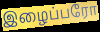
இழைப்பரோ